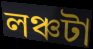
লঞ্চটা